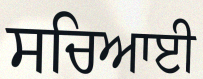
ਸਚਿਆਈ